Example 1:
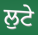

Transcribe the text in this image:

ਲੁਟੇ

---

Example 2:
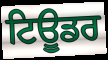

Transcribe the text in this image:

ਟਿਊਡਰ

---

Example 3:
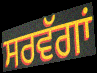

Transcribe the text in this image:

ਸਰਵੱਗਾਂ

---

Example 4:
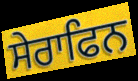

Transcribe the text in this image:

ਸੇਰਾਫਿਨ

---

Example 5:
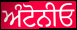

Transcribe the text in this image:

ਅੰਟੋਨੀਓ